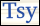
Tsy